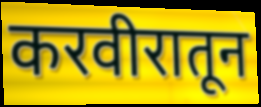
करवीरातून